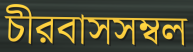
চীরবাসসম্বল